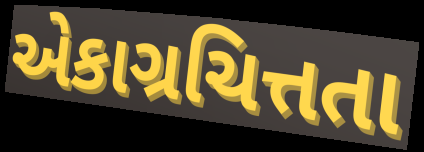
એકાગ્રચિત્તતા